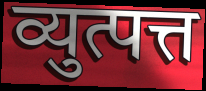
व्युत्पत्त